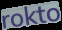
rokto